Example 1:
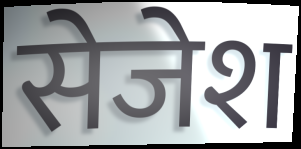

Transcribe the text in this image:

सेजेश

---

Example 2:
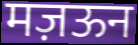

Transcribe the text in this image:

मज़ऊन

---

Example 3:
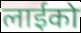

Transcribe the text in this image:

लाईको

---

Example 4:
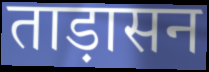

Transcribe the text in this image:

ताड़ासन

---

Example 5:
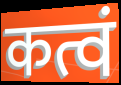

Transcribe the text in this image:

कत्वं